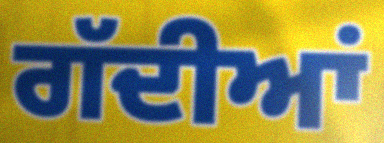
ਗੱਦੀਆਂ